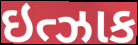
ઇત્ઝાક